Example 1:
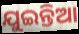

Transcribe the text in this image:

ଯୁଇନ୍ତିଆ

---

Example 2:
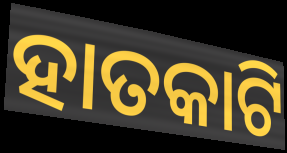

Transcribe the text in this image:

ହାତକାଟି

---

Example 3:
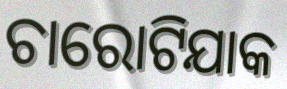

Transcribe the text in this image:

ଚାରୋଟିଯାକ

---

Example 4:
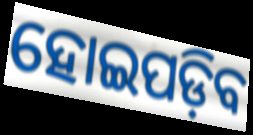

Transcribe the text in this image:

ହୋଇପଡ଼ିବ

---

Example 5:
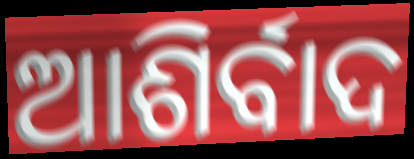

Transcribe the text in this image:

ଆଶିର୍ବାଦ